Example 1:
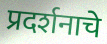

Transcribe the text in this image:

प्रदर्शनाचे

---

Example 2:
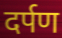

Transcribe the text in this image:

दर्पण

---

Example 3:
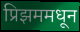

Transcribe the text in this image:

प्रिझममधून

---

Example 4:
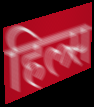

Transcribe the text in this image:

हिल्स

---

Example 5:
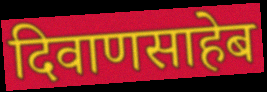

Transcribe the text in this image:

दिवाणसाहेब